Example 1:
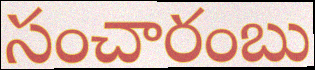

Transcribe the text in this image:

సంచారంబు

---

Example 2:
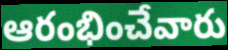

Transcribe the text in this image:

ఆరంభించేవారు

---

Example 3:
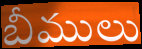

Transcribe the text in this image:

బీములు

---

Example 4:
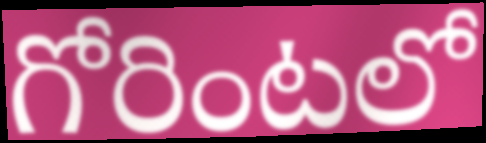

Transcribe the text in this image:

గోరింటలో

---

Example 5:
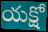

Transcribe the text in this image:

యక్షో